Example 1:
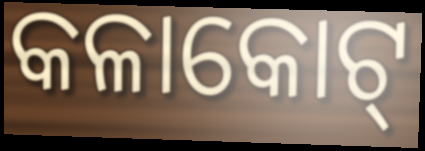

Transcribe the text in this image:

କଳାକୋଟ୍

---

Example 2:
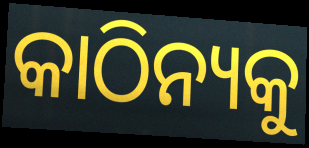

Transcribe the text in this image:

କାଠିନ୍ୟକୁ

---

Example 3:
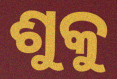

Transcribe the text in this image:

ଶୁକୁ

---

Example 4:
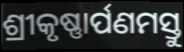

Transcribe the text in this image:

ଶ୍ରୀକୃଷ୍ଣାର୍ପଣମସ୍ତୁ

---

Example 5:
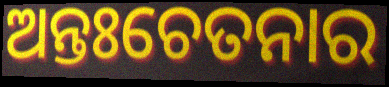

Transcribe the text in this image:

ଅନ୍ତଃଚେତନାର